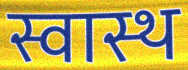
स्वास्थ